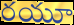
రయూ